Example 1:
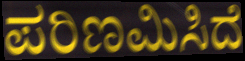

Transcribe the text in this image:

ಪರಿಣಮಿಸಿದೆ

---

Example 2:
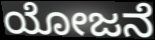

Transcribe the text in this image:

ಯೋಜನೆ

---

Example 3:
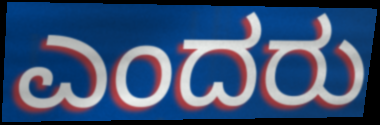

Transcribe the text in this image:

ಎಂದರು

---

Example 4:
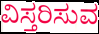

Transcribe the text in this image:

ವಿಸ್ತರಿಸುವ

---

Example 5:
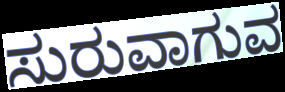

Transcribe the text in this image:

ಸುರುವಾಗುವ